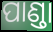
ପାଣ୍ଡା